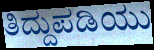
ತಿದ್ದುಪಡಿಯು